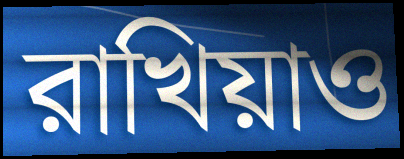
রাখিয়াও